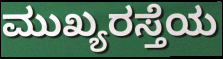
ಮುಖ್ಯರಸ್ತೆಯ